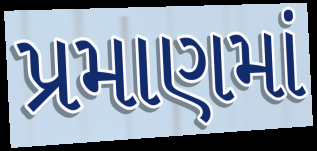
પ્રમાણમાં